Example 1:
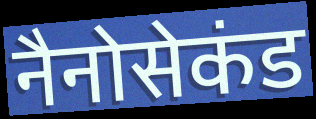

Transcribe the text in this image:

नैनोसेकंड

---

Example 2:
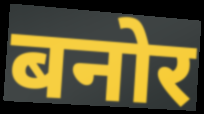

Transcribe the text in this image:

बनोर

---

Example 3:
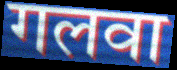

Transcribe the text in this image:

गलवा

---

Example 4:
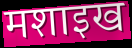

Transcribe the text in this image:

मशाइख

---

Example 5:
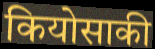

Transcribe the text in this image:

कियोसाकी